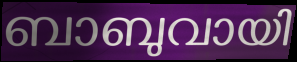
ബാബുവായി